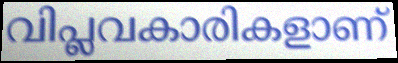
വിപ്ലവകാരികളാണ്